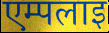
एम्पलाइ